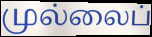
முல்லைப்